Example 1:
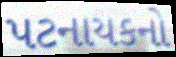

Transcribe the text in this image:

પટનાયકનો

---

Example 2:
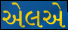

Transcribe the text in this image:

એલએ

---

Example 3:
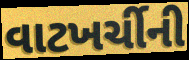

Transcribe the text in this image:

વાટખર્ચીની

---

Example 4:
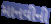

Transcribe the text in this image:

માનવીની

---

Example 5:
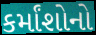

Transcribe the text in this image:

કર્માંશોનો